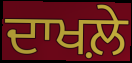
ਦਾਖਲ਼ੇ